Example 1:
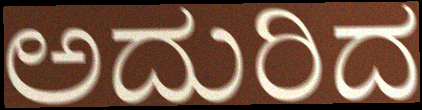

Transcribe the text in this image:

ಅದುರಿದ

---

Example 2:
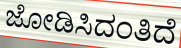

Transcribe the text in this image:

ಜೋಡಿಸಿದಂತಿದೆ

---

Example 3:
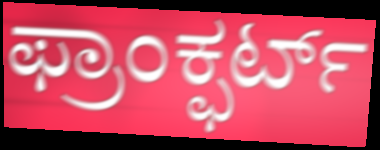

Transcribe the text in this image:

ಫ್ರಾಂಕ್ಫರ್ಟ್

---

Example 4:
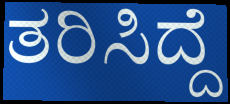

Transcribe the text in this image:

ತರಿಸಿದ್ದೆ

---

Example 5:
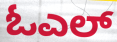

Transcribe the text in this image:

ಓಎಲ್